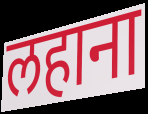
लहाना